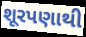
શૂરપણાથી